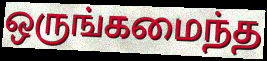
ஒருங்கமைந்த